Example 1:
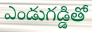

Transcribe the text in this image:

ఎండుగడ్డితో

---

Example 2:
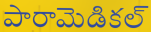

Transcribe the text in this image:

పారామెడికల్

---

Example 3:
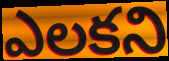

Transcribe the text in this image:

ఎలకని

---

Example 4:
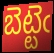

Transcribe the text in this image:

బెట్టెఁ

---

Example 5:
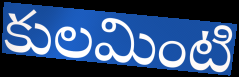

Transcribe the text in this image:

కులమింటి